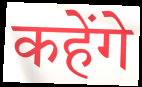
कहेंगे